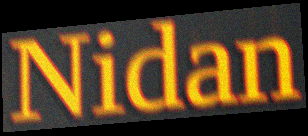
Nidan